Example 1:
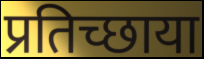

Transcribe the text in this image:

प्रतिच्छाया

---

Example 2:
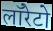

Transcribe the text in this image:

लॉरेटो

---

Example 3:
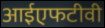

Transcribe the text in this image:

आईएफटीवी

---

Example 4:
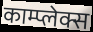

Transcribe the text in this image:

काम्प्लेक्स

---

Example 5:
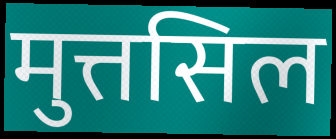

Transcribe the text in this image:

मुत्तसिल